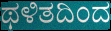
ಥಳಿತದಿಂದ